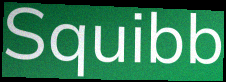
Squibb